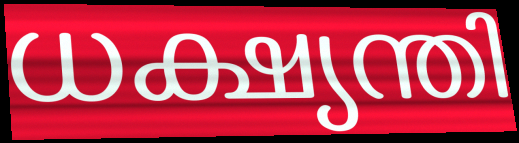
ധക്ഷ്യന്തി